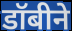
डॉबीने